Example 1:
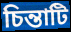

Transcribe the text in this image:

চিন্তাটি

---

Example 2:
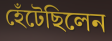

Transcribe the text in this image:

হেঁটেছিলেন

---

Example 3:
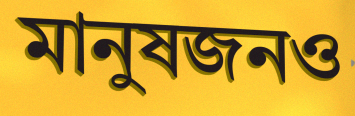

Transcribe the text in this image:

মানুষজনও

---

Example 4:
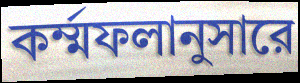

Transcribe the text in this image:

কর্ম্মফলানুসারে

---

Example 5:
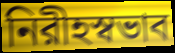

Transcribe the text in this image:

নিরীহস্বভাব